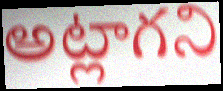
అట్లాగని